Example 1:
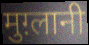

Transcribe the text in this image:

मुग़्लानी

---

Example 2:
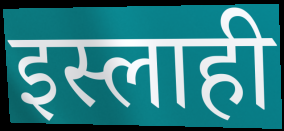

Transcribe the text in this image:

इस्लाही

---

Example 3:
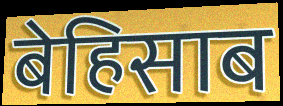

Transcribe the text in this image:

बेहिसाब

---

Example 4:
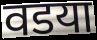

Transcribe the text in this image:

वडया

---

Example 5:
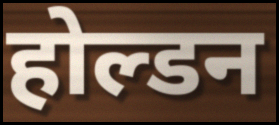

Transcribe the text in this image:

होल्डन